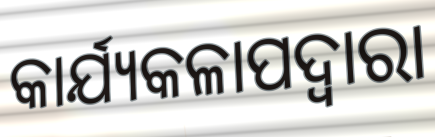
କାର୍ଯ୍ୟକଳାପଦ୍ୱାରା